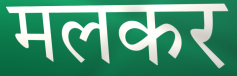
मलकर